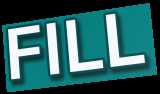
FILL